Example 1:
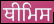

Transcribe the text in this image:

ਥੀਮਿਸ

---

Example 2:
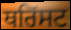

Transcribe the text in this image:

ਥਰਿੱਸਟ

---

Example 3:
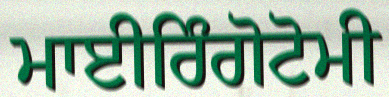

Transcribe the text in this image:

ਮਾਈਰਿੰਗੋਟੋਮੀ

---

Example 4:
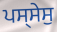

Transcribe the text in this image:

ਪਸ੍ਸੇਸੁ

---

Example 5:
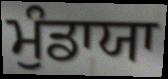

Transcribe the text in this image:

ਮੁੰਡਾਯਾ